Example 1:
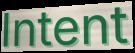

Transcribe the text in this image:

Intent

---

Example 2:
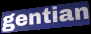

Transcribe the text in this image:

gentian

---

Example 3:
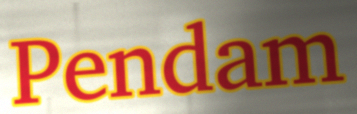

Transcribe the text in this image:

Pendam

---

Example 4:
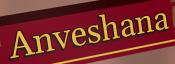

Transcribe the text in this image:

Anveshana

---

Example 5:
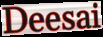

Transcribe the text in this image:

Deesai